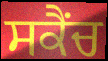
ਸਕੈਂਚ